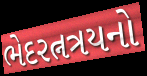
ભેદરત્નત્રયનો